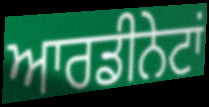
ਆਰਡੀਨੇਟਾਂ